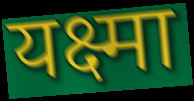
यक्ष्मा